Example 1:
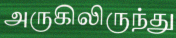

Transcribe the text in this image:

அருகிலிருந்து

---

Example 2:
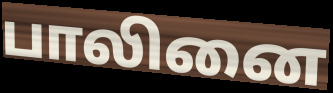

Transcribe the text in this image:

பாலினை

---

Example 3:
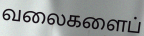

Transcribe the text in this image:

வலைகளைப்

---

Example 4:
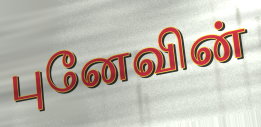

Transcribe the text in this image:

புனேவின்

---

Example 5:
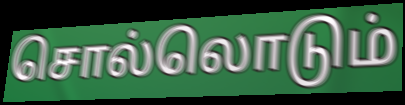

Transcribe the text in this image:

சொல்லொடும்